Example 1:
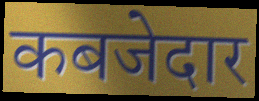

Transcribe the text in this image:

कबजेदार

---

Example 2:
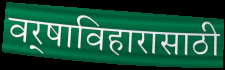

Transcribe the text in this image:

वर्षाविहारासाठी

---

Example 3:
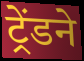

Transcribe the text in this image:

ट्रेंडने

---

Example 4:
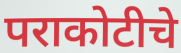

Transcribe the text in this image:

पराकोटीचे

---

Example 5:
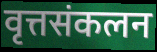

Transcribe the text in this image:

वृत्तसंकलन